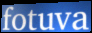
fotuva